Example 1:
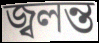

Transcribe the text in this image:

জ্বলন্ত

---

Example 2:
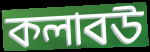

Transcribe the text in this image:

কলাবউ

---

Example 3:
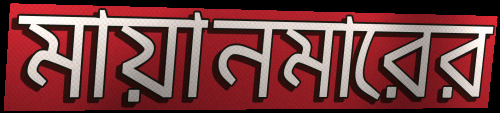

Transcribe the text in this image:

মায়ানমারের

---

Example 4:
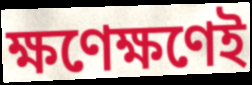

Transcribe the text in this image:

ক্ষণেক্ষণেই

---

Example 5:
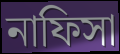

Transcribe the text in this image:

নাফিসা